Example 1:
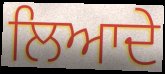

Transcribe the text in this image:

ਲਿਆਦੇ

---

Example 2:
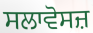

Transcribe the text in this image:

ਸਲਾਵੋਸਜ਼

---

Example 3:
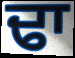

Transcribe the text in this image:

ਢਾ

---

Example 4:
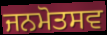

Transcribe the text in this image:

ਜਨਮੋਤਸਵ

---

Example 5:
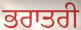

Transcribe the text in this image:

ਭਰਾਤਰੀ